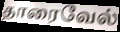
தாரைவேல்